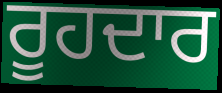
ਰੂਹਦਾਰ